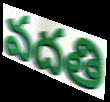
వదతి